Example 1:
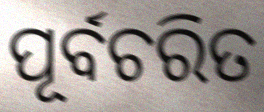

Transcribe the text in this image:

ପୂର୍ବଚରିତ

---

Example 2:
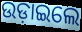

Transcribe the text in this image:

ଉଡ଼ାଇଲେ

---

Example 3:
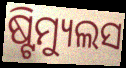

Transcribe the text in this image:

ଷ୍ଟିମ୍ୟୁଲସ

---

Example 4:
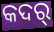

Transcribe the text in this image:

କଦର୍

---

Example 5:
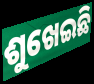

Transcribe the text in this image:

ଶୁଖେଇଛି